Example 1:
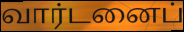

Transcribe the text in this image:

வார்டனைப்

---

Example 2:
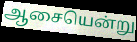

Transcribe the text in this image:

ஆசையென்று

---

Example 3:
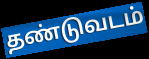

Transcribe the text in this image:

தண்டுவடம்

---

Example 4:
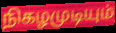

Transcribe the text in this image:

நிகழமுடியும்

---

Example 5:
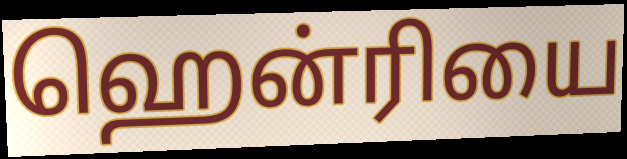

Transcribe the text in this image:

ஹென்ரியை